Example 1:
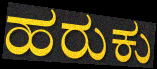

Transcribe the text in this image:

ಹರುಕು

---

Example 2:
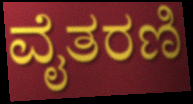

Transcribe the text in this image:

ವೈತರಣಿ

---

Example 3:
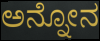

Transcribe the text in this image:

ಅನ್ನೋನ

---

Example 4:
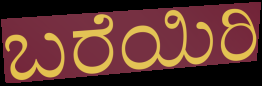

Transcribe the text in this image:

ಬರೆಯಿರಿ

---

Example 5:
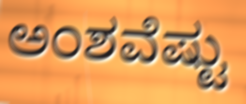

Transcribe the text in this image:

ಅಂಶವೆಷ್ಟು